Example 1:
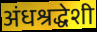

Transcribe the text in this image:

अंधश्रद्धेशी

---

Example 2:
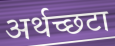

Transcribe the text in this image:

अर्थच्छटा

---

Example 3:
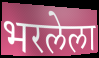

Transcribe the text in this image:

भरलेला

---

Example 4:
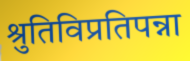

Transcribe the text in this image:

श्रुतिविप्रतिपन्ना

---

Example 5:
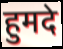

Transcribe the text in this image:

हुमदे